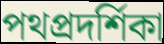
পথপ্রদর্শিকা